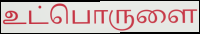
உட்பொருளை